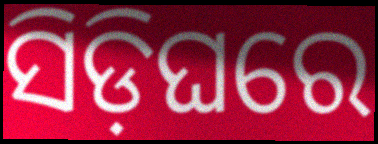
ସିଡ଼ିଘରେ